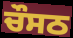
ਚੌਸਠ